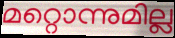
മറ്റൊന്നുമില്ല